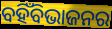
ବହିଁବିଭାଜନର